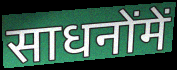
साधनोंमें